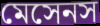
মেসেনস